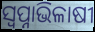
ସ୍ଵପ୍ନାଭିଳାଷୀ